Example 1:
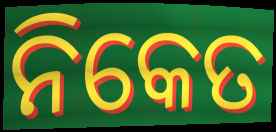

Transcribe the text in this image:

ନିକେତ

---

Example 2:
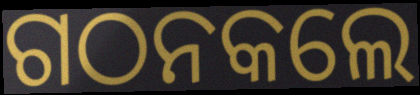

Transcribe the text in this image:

ଗଠନକଲେ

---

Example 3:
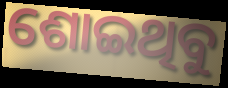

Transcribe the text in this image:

ଶୋଇଥିବୁ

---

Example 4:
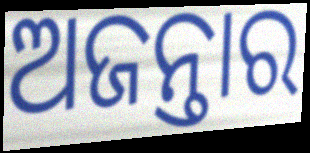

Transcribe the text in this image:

ଅଜନ୍ତାର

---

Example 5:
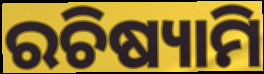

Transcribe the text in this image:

ରଚିଷ୍ୟାମି